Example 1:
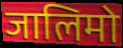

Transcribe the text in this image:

जालिमो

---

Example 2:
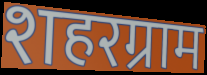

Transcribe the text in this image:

शहरग्राम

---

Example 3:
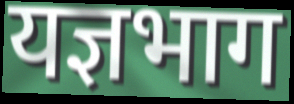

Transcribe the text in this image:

यज्ञभाग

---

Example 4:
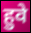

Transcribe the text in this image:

हुवे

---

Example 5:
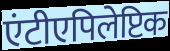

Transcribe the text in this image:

एंटीएपिलेप्टिक